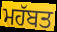
ਮਹੱਬਤ